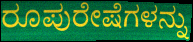
ರೂಪುರೇಷೆಗಳನ್ನು